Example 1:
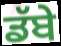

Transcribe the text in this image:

ਡੱਬੇ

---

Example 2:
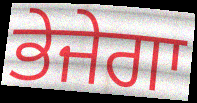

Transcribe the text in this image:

ਭੇਜੇਗਾ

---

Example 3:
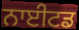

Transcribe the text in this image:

ਨਾਈਟਡ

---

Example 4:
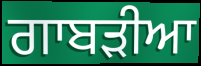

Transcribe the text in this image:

ਗਾਬੜੀਆ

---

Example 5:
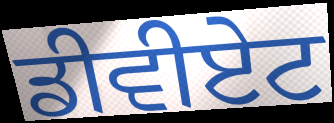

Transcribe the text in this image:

ਡੀਵੀਏਟ